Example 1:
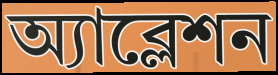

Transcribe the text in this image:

অ্যাব্লেশন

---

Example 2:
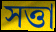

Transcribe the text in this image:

সত্তা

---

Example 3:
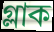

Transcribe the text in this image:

গ্লাক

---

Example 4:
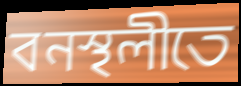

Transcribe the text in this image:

বনস্থলীতে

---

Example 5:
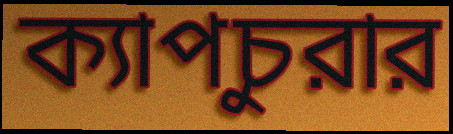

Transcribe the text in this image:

ক্যাপচুরার